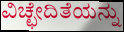
ವಿಚ್ಛೇದಿತೆಯನ್ನು